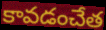
కావడంచేత